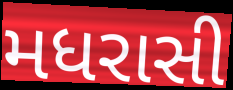
મધરાસી